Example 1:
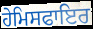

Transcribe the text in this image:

ਹੇਮਿਸਫਾਇਰ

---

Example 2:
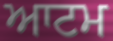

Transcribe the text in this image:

ਆਟਮ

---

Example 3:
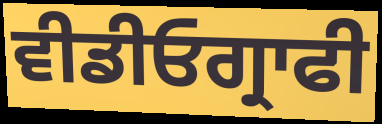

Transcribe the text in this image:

ਵੀਡੀਓਗ੍ਰਾਫੀ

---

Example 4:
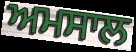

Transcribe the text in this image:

ਅਮਸਾਲ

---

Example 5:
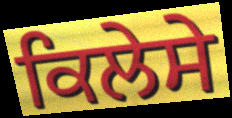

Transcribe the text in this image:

ਕਿਲੇਸੇ